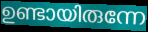
ഉണ്ടായിരുന്നേ